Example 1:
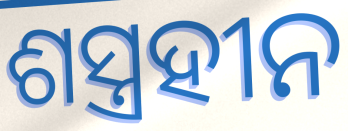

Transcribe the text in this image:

ଶସ୍ତ୍ରହୀନ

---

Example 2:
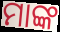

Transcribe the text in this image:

ମାଙ୍କ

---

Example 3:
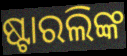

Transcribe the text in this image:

ଷ୍ଟାରଲିଙ୍କ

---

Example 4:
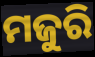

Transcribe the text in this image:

ମଜୁରି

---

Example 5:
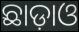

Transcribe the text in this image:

ଛାଡ଼ାଓ